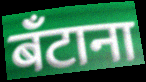
बँटाना